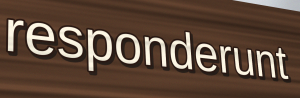
responderunt